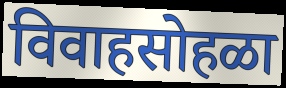
विवाहसोहळा